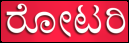
ರೋಟರಿ